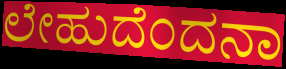
ಲೇಹುದೆಂದನಾ